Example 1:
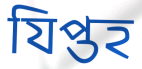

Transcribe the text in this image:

যিপ্তহ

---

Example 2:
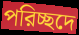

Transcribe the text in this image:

পরিচ্ছদে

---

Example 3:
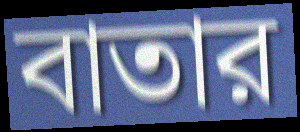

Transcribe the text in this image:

বাতার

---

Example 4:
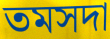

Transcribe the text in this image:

তমসদা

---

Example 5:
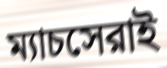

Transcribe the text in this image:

ম্যাচসেরাই